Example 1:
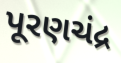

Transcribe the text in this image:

પૂરણચંદ્ર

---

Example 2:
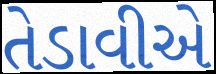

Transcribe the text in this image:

તેડાવીએ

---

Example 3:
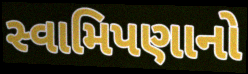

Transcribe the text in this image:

સ્વામિપણાનો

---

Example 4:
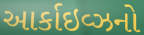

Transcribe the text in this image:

આર્કાઇવ્ઝનો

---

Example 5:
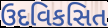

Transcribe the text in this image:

ઉદવિકસિત